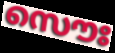
സൌഃ